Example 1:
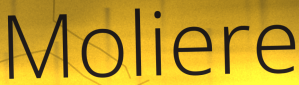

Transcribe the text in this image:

Moliere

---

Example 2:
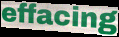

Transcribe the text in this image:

effacing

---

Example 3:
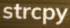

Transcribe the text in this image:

strcpy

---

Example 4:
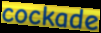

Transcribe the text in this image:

cockade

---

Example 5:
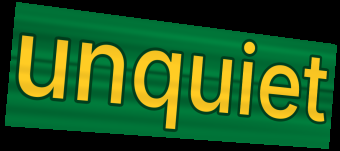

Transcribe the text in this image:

unquiet